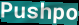
Pushpo